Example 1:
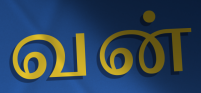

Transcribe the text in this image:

வன்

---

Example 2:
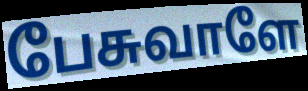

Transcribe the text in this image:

பேசுவாளே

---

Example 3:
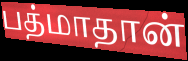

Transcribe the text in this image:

பத்மாதான்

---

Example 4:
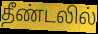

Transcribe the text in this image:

தீண்டலில்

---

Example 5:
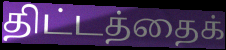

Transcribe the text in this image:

திட்டத்தைக்